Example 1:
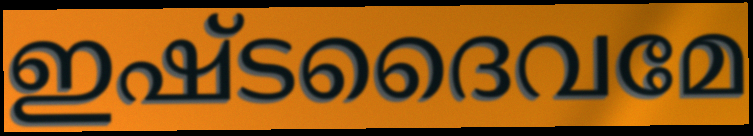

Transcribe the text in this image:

ഇഷ്ടദൈവമേ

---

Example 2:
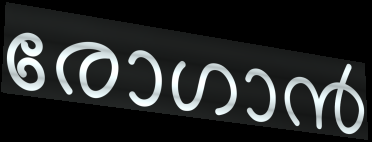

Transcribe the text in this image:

രോഗാൻ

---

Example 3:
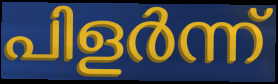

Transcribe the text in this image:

പിളർന്ന്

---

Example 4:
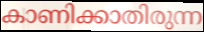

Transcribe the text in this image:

കാണിക്കാതിരുന്ന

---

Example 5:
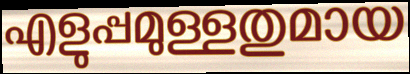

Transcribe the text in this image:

എളുപ്പമുള്ളതുമായ